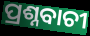
ପ୍ରଶ୍ନବାଚୀ